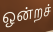
ஒன்றச்